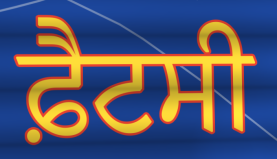
ਫ਼ੈਟਸੀ